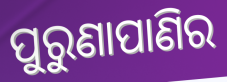
ପୁରୁଣାପାଣିର